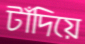
টাঁদিয়ে